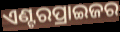
ଏଣ୍ଟରପ୍ରାଇଜର